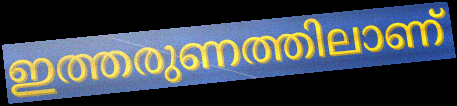
ഇത്തരുണത്തിലാണ്